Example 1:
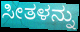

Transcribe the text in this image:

ಸೀತಳನ್ನು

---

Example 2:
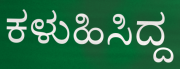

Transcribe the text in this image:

ಕಳುಹಿಸಿದ್ದ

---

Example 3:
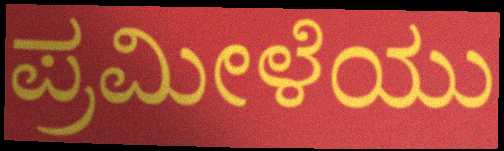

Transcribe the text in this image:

ಪ್ರಮೀಳೆಯು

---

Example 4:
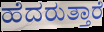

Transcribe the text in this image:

ಹೆದರುತ್ತಾರೆ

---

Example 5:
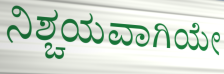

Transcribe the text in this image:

ನಿಶ್ಚಯವಾಗಿಯೇ